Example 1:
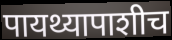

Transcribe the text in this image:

पायथ्यापाशीच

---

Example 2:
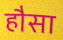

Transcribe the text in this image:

हौसा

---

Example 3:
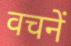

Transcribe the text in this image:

वचनें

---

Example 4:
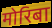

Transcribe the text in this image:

मोरिबा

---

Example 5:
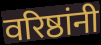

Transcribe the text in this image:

वरिष्ठांनी